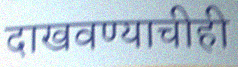
दाखवण्याचीही